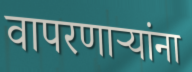
वापरणाऱ्यांना